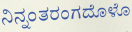
ನಿನ್ನಂತರಂಗದೊಳೊ